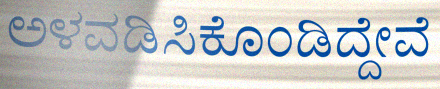
ಅಳವಡಿಸಿಕೊಂಡಿದ್ದೇವೆ